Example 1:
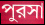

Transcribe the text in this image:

পুরসা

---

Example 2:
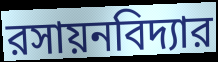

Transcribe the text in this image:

রসায়নবিদ্যার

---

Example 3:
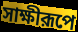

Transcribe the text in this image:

সাক্ষীরূপে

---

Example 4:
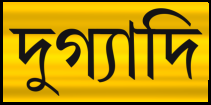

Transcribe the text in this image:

দুগ্যাদি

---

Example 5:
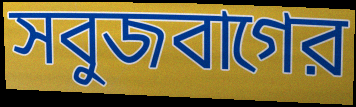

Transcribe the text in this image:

সবুজবাগের